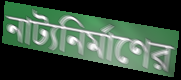
নাট্যনির্মাণের